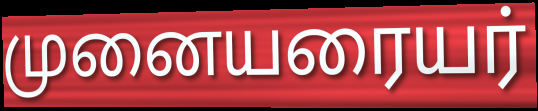
முனையரையர்